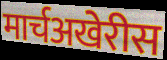
मार्चअखेरीस